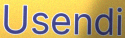
Usendi